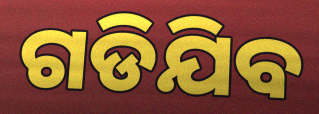
ଗଡିଯିବ